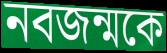
নবজন্মকে